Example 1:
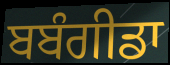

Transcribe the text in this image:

ਬਬੰਗੀਡਾ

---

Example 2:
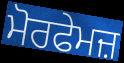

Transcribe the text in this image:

ਮੋਰਫੇਮਜ਼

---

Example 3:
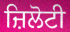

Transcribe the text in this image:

ਜ਼ਿਲੋਟੀ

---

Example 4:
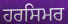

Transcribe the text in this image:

ਹਰਸਿਮਰ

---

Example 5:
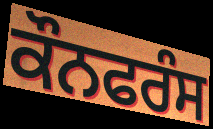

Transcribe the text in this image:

ਕੌਨਫਰੰਸ